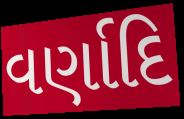
વર્ણાદિ